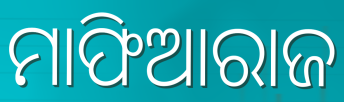
ମାଫିଆରାଜ